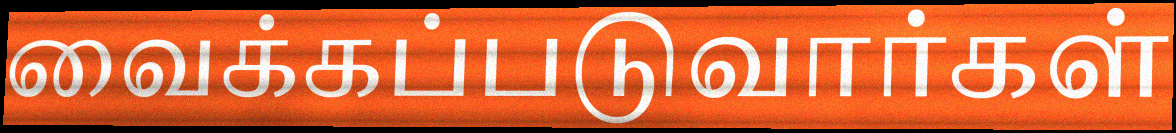
வைக்கப்படுவார்கள்